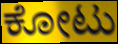
ಕೋಟು